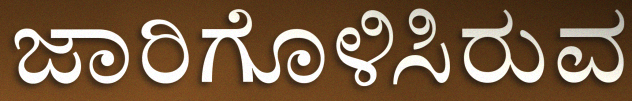
ಜಾರಿಗೊಳಿಸಿರುವ